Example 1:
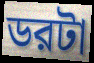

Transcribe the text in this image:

ডরটা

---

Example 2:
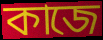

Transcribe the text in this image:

কাজে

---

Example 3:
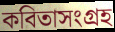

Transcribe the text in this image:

কবিতাসংগ্রহ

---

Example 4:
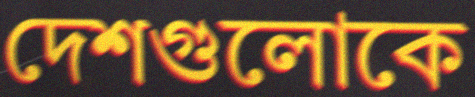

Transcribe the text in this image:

দেশগুলোকে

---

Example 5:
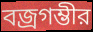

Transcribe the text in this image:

বজ্রগম্ভীর